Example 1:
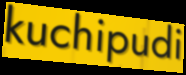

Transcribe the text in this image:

kuchipudi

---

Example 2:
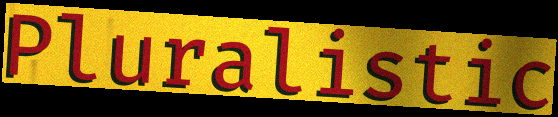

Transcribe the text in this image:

Pluralistic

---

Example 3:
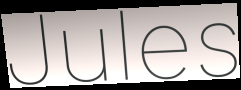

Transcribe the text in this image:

Jules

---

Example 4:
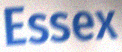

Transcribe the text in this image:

Essex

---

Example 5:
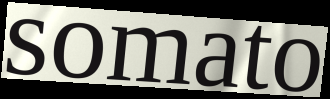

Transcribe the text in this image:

somato